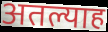
अतल्याह